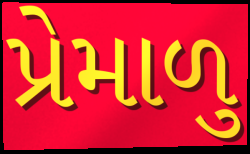
પ્રેમાળુ